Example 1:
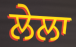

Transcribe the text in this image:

ਲੇਲਾ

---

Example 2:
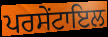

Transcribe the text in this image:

ਪਰਸੇਂਟਾਇਲ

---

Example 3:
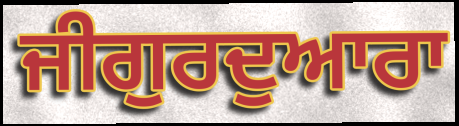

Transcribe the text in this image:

ਜੀਗੁਰਦੁਆਰਾ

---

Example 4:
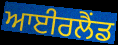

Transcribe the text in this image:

ਆਈਰਲੈਂਡ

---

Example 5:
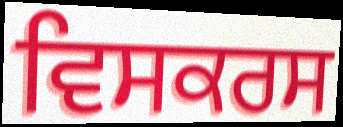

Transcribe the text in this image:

ਵਿਸਕਰਸ